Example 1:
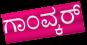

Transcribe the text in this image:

ಗಾಂವ್ಕರ್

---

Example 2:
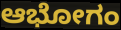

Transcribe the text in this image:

ಆಭೋಗಂ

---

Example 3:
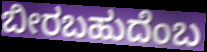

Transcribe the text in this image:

ಬೀರಬಹುದೆಂಬ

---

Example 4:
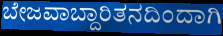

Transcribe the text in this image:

ಬೇಜವಾಬ್ದಾರಿತನದಿಂದಾಗಿ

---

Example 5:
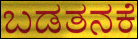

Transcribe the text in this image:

ಬಡತನಕೆ